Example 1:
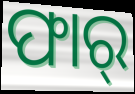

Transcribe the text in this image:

ଫାର୍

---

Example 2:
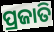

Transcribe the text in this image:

ପ୍ରଜାତି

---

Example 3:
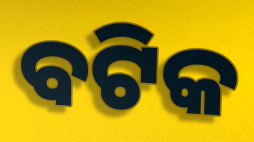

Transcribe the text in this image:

ବଟିକ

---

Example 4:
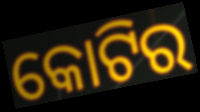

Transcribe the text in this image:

କୋଟିର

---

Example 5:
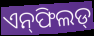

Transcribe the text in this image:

ଏନ୍‌ଫିଲଡ୍